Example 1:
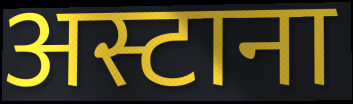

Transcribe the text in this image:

अस्टाना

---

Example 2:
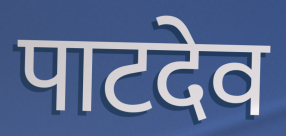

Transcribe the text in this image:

पाटदेव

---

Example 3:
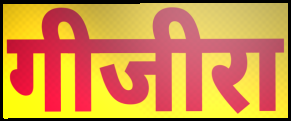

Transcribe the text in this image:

गीजीरा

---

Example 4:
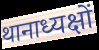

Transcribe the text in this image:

थानाध्यक्षों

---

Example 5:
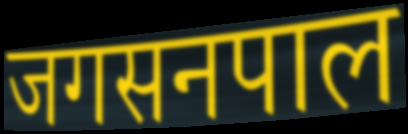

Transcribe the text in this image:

जगसनपाल